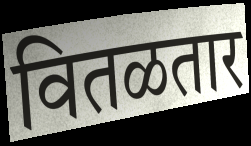
वितळतार